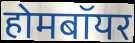
होमबॉयर